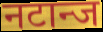
नटान्ज